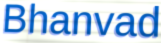
Bhanvad